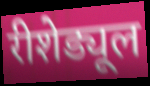
रीशेड्यूल